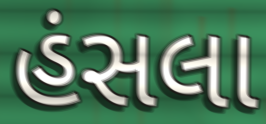
હંસલા